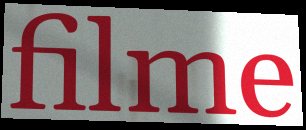
filme